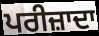
ਪਰੀਜ਼ਾਦਾ